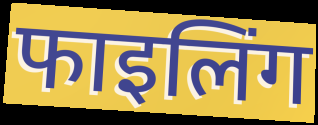
फाइलिंग